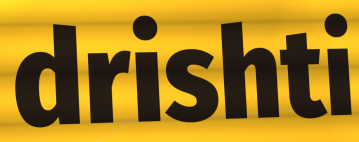
drishti